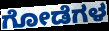
ಗೋಡೆಗಳ